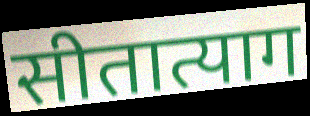
सीतात्याग